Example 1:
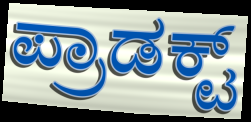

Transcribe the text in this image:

ಪ್ರಾಡಕ್ಟ್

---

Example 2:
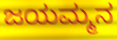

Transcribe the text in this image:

ಜಯಮ್ಮನ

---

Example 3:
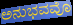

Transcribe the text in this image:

ಅನುಭವವೊ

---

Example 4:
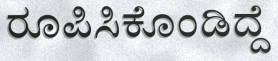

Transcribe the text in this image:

ರೂಪಿಸಿಕೊಂಡಿದ್ದೆ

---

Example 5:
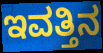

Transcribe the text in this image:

ಇವತ್ತಿನ